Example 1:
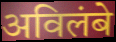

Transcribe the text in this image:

अविलंबे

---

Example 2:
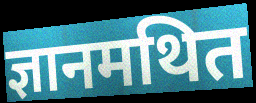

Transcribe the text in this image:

ज्ञानमथित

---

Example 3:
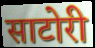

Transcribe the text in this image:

साटोरी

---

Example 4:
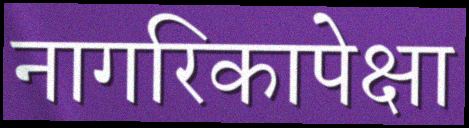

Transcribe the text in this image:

नागरिकापेक्षा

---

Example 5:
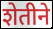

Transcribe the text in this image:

शेतीने